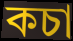
কচা